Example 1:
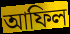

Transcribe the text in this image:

আফিল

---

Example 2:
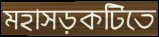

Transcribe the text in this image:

মহাসড়কটিতে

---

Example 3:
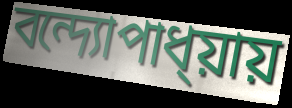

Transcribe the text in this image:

বন্দ্যোপাধ্য়ায়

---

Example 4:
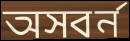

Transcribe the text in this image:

অসবর্ন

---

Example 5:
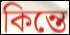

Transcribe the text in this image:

কিন্তে